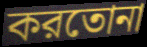
করতোনা